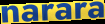
narara